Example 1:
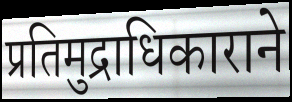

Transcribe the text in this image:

प्रतिमुद्राधिकाराने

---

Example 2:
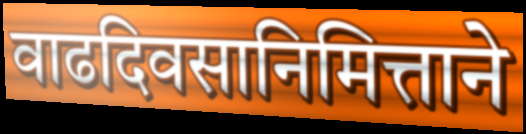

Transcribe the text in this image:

वाढदिवसानिमित्ताने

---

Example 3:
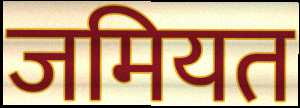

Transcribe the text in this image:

जमियत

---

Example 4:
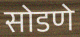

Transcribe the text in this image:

सोडणे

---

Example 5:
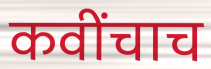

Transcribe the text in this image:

कवींचाच